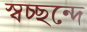
স্বচ্ছন্দে